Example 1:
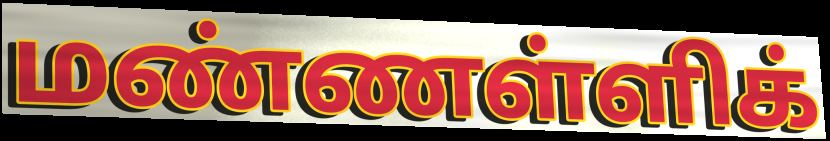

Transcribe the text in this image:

மண்ணள்ளிக்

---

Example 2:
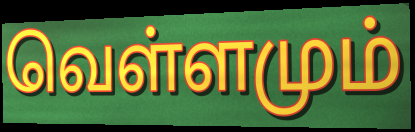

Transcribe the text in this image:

வெள்ளமும்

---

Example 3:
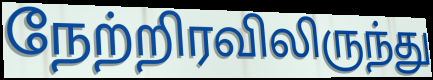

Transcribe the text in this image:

நேற்றிரவிலிருந்து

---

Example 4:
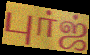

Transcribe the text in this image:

புர்ஜ்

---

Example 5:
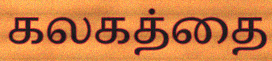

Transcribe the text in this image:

கலகத்தை